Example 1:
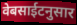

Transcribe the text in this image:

वेबसाईटनुसार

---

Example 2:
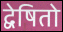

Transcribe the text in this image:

द्वेषितो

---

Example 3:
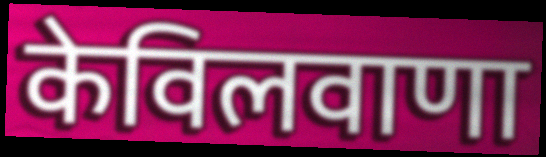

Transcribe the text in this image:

केविलवाणा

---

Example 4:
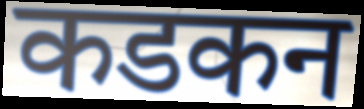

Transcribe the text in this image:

कडकन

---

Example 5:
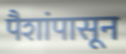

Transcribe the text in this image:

पैशांपासून